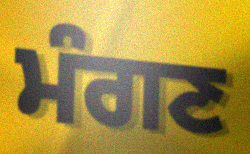
ਮੰਗਣ